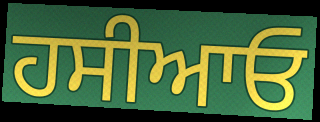
ਹਸੀਆਓ